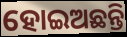
ହୋଇଅଛନ୍ତି